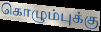
கொழும்புக்கு